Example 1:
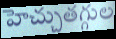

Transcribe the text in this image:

హెచ్చుతగ్గుల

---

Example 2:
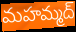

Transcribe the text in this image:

మహమ్మద్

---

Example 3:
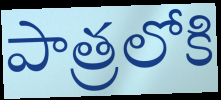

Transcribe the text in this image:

పాత్రలోకి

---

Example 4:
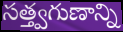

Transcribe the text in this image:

సత్త్వగుణాన్ని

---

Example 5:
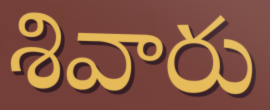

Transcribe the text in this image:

శివారు